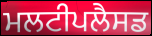
ਮਲਟੀਪਲੈਸਡ